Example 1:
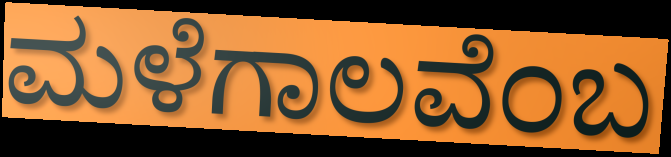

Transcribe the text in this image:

ಮಳೆಗಾಲವೆಂಬ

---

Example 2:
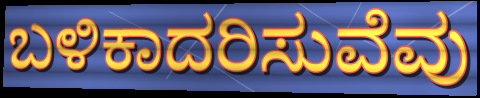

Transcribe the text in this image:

ಬಳಿಕಾದರಿಸುವೆವು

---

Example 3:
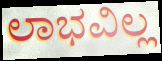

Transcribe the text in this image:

ಲಾಭವಿಲ್ಲ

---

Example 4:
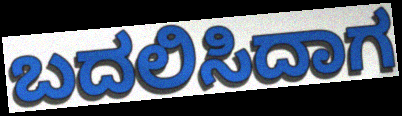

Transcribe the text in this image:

ಬದಲಿಸಿದಾಗ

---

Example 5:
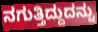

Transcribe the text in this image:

ನಗುತ್ತಿದ್ದುದನ್ನು